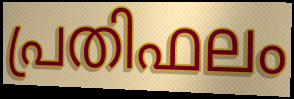
പ്രതിഫലം